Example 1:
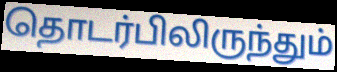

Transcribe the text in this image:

தொடர்பிலிருந்தும்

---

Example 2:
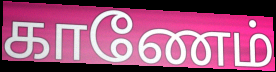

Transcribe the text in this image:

காணேம்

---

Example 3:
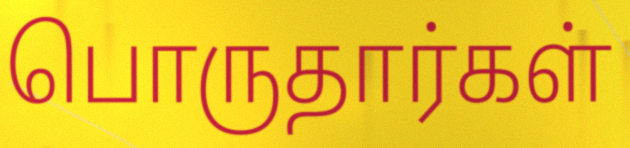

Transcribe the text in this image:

பொருதார்கள்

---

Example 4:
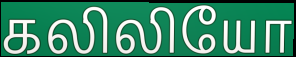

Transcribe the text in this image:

கலிலியோ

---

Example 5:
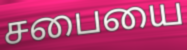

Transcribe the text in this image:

சபையை